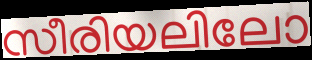
സീരിയലിലോ